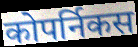
कोपर्निकस